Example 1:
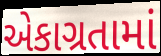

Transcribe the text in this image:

એકાગ્રતામાં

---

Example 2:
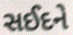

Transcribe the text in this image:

સઈદને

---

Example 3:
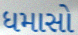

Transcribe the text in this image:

ધમાસો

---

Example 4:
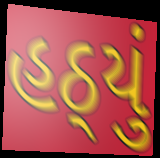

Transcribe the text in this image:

હઠ્યું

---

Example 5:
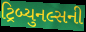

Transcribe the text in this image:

ટ્રિબ્યુનલ્સની